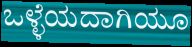
ಒಳ್ಳೆಯದಾಗಿಯೂ